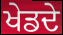
ਖੇਡਦੇ